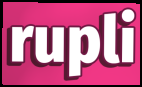
rupli